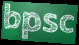
bpsc